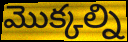
మొక్కల్ని